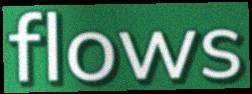
flows